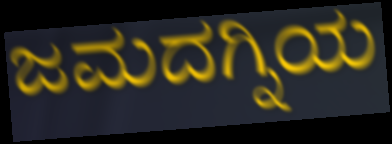
ಜಮದಗ್ನಿಯ